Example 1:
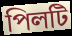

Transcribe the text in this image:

পিলটি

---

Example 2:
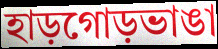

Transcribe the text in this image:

হাড়গোড়ভাঙা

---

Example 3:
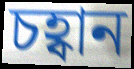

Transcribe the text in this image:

চহ্বান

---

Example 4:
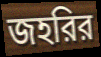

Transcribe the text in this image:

জহরির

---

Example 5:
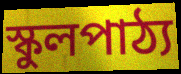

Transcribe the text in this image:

স্কুলপাঠ্য